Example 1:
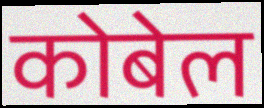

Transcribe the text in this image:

कोबेल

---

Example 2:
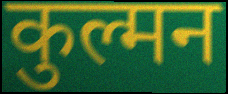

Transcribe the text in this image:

कुल्मन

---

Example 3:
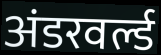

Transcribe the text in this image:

अंडरवर्ल्ड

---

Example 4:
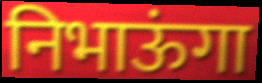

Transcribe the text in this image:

निभाऊंगा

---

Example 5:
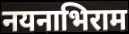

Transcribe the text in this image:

नयनाभिराम